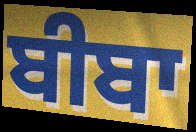
ਬੀਬਾ